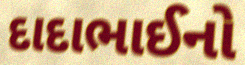
દાદાભાઈનો